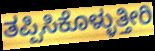
ತಪ್ಪಿಸಿಕೊಳ್ಳುತ್ತೀರಿ